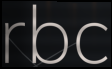
rbc